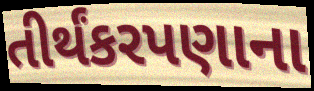
તીર્થંકરપણાના